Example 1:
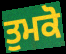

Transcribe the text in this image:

ਤੁਮਕੋ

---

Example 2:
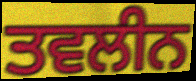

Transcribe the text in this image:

ਤਵਲੀਨ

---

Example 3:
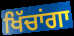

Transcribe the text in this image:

ਖਿੱਚਾਂਗਾ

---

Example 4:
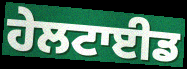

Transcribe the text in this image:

ਹੇਲਟਾਈਡ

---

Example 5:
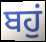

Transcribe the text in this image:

ਬਹੁਂ